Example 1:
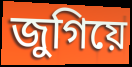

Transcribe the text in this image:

জুগিয়ে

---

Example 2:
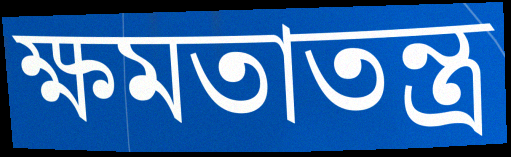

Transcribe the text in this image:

ক্ষমতাতন্ত্র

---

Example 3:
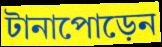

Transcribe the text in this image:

টানাপোড়েন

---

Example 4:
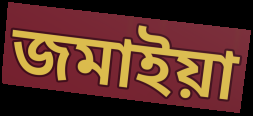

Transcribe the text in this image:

জমাইয়া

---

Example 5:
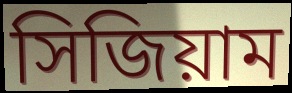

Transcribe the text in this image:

সিজিয়াম